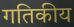
गतिकीय